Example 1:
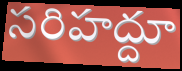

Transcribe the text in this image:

సరిహద్దూ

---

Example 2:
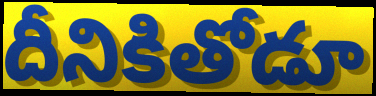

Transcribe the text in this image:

దీనికితోడూ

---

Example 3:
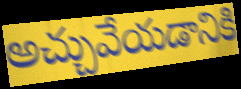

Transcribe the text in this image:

అచ్చువేయడానికి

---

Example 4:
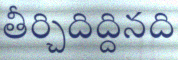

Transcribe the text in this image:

తీర్చిదిద్దినది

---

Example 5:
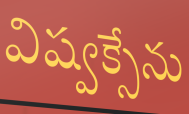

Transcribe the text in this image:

విష్వక్సేను